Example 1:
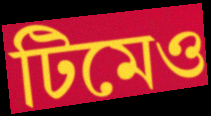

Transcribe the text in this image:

টিমেও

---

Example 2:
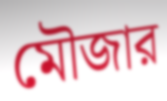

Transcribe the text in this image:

মৌজার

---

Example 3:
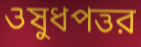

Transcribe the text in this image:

ওষুধপত্তর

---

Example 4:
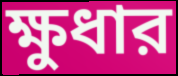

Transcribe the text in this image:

ক্ষুধার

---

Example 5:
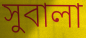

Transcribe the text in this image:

সুবালা